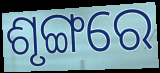
ଶୃଙ୍ଗରେ